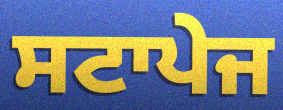
ਸਟਾਪੇਜ